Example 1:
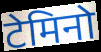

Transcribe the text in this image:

टेमिनो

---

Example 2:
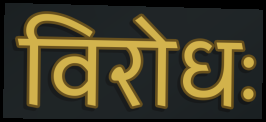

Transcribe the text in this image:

विरोधः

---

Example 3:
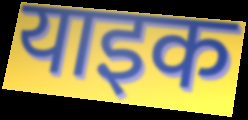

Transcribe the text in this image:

याइक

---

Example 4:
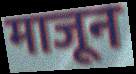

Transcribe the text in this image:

माजून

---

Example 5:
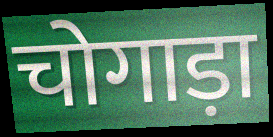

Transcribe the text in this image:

चोगाड़ा